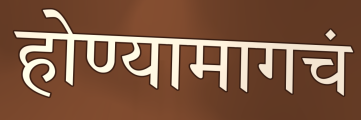
होण्यामागचं